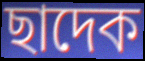
ছাদেক